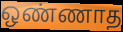
ஒண்ணாத